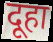
दूहा